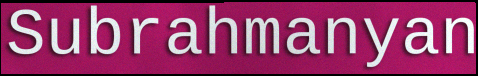
Subrahmanyan